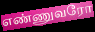
எண்ணுவரோ